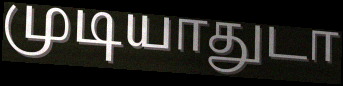
முடியாதுடா